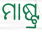
ମାଷ୍ଟ୍ର